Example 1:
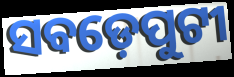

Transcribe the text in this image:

ସବଡ଼େପୁଟୀ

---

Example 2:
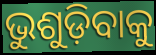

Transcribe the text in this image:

ଭୁଶୁଡ଼ିବାକୁ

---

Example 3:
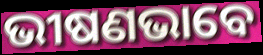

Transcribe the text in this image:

ଭୀଷଣଭାବେ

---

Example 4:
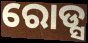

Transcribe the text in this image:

ରୋଡ୍ସ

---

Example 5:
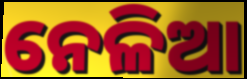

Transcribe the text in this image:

ନେଳିଆ